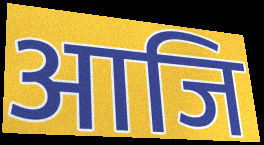
आजि